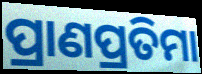
ପ୍ରାଣପ୍ରତିମା